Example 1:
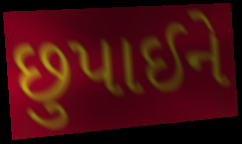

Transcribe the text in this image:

છુપાઈને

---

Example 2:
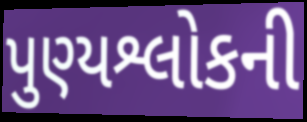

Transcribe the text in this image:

પુણ્યશ્લોકની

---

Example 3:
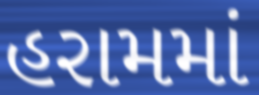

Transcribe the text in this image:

હરામમાં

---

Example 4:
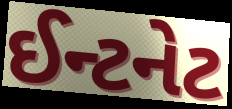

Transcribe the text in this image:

ઈન્ટનેટ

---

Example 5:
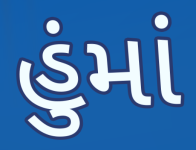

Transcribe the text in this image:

હુંમાં